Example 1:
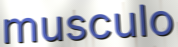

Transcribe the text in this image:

musculo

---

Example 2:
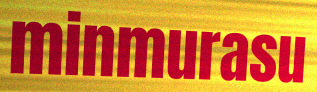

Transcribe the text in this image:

minmurasu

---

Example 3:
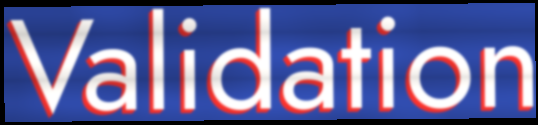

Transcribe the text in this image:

Validation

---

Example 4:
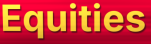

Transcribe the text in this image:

Equities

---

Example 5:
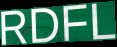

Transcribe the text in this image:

RDFL